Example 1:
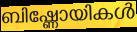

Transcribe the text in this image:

ബിഷ്ണോയികൾ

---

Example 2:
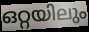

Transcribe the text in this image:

ഒറ്റയിലും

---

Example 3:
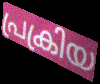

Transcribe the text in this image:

പ്രക്രിയ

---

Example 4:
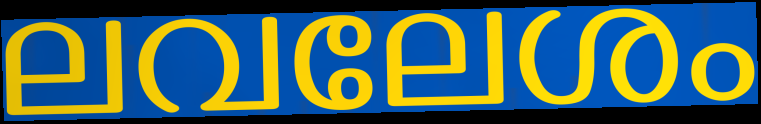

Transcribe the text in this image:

ലവലേശം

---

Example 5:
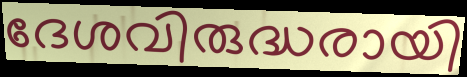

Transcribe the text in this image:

ദേശവിരുദ്ധരായി